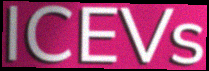
ICEVs